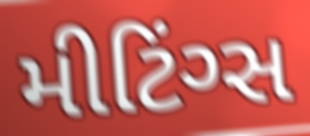
મીટિંગ્સ